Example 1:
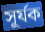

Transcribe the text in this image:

সূৰ্যক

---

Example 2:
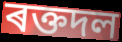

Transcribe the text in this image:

ৰক্তদল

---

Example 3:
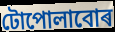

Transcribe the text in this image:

টোপোলাবোৰ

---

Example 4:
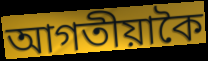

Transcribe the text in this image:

আগতীয়াকৈ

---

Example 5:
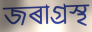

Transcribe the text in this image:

জৰাগ্ৰস্থ